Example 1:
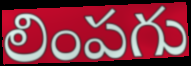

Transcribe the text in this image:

లింపగు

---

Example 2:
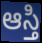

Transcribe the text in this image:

ఆస్తి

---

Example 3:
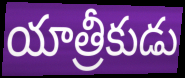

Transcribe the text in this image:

యాత్రీకుడు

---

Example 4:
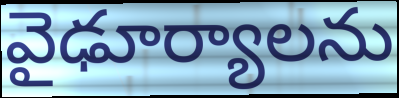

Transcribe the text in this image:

వైఢూర్యాలను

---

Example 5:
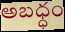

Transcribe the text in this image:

అబధ్ధం